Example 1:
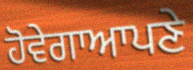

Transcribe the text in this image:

ਹੋਵੇਗਾਆਪਣੇ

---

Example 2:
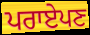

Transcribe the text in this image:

ਪਰਾਏਪਣ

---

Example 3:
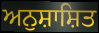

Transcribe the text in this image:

ਅਨੁਸ਼ਾਸ਼ਿਤ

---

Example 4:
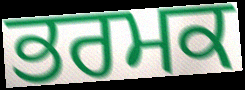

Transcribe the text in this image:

ਭਰਮਕ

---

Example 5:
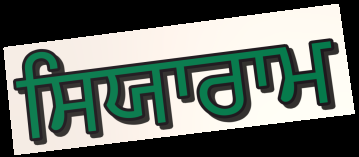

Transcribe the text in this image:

ਸਿਯਾਰਾਮ